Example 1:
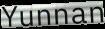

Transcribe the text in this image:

Yunnan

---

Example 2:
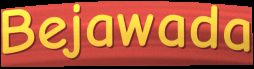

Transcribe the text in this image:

Bejawada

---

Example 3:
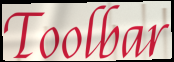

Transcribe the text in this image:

Toolbar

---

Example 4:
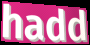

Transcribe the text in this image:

hadd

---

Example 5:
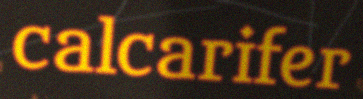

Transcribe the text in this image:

calcarifer